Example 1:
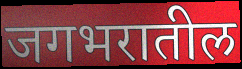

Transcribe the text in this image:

जगभरातील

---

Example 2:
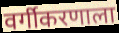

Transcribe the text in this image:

वर्गीकरणाला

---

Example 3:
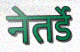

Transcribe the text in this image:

नेतर्डे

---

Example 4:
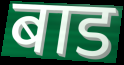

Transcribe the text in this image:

बाड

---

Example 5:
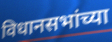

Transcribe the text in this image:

विधानसभांच्या